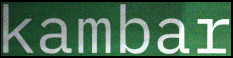
kambar